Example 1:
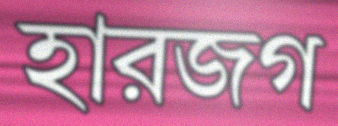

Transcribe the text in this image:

হারজগ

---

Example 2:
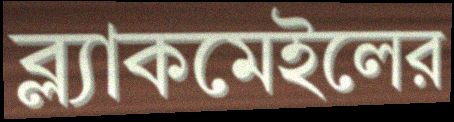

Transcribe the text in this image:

ব্ল্যাকমেইলের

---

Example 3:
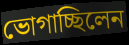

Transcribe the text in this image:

ভোগাচ্ছিলেন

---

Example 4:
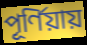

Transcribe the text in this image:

পূর্ণিয়ায়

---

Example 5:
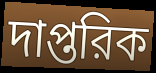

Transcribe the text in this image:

দাপ্তরিক